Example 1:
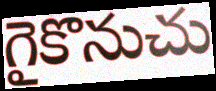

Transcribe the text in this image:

గైకొనుచు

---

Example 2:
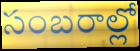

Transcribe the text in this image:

సంబరాల్లో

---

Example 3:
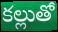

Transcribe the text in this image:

కల్లుతో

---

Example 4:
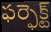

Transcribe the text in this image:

ఫర్ఫెక్ట్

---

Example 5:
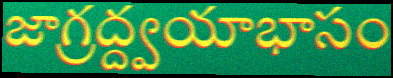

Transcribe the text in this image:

జాగ్రద్ద్వయాభాసం